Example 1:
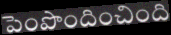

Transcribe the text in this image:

పెంపొందించింది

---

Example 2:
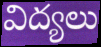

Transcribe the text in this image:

విద్యలు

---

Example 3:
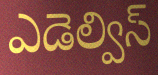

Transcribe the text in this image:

ఎడెల్విస్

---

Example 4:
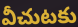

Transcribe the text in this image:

వీచుటకు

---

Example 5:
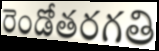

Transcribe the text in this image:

రెండోతరగతి